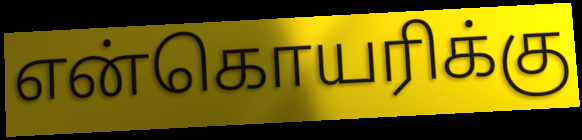
என்கொயரிக்கு